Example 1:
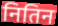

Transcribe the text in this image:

नितिन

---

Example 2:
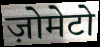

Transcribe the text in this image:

ज़ोमेटो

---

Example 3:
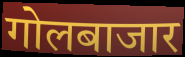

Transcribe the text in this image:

गोलबाजार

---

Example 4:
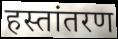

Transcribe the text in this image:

हस्तांतरण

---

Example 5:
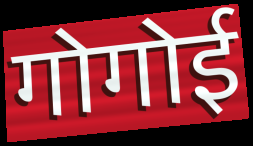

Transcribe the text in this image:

गोगोई